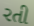
રતી